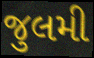
જુલમી